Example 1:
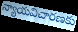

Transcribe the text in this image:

న్యాయవిచారణకు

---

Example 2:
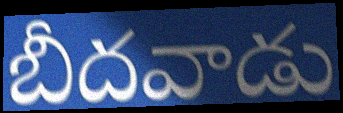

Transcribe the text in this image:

బీదవాడు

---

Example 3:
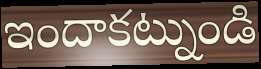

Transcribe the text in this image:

ఇందాకట్నుండి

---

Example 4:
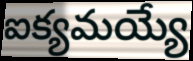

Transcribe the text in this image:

ఐక్యమయ్యే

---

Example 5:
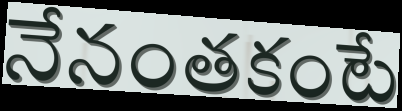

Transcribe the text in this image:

నేనంతకంటే